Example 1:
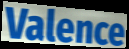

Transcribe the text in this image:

Valence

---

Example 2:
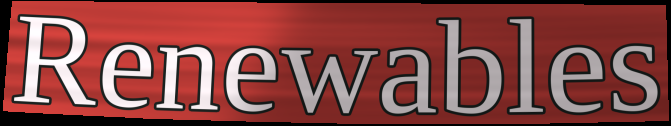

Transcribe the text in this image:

Renewables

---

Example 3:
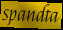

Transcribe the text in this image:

spandta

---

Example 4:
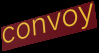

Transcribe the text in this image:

convoy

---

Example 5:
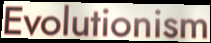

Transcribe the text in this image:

Evolutionism